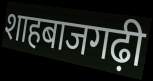
शाहबाजगढ़ी